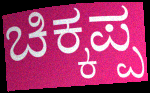
ಚಿಕ್ಕಪ್ಪ